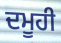
ਦਮੂਹੀ